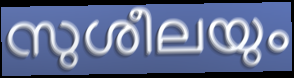
സുശീലയും